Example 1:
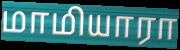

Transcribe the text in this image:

மாமியாரா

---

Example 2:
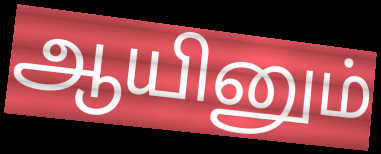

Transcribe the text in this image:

ஆயினும்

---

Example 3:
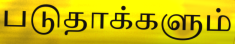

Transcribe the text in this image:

படுதாக்களும்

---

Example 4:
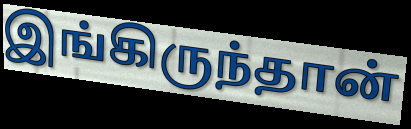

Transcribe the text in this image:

இங்கிருந்தான்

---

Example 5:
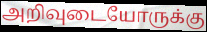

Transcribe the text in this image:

அறிவுடையோருக்கு